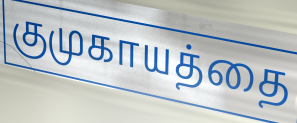
குமுகாயத்தை